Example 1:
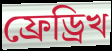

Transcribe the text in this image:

ফ্ৰেড্ৰিখ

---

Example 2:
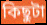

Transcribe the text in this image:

কিছুটা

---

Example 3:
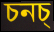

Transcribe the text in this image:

চনচ্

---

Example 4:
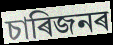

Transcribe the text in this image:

চাৰিজনৰ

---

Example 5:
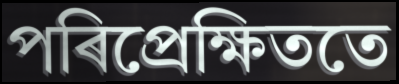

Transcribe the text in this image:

পৰিপ্ৰেক্ষিততে